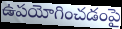
ఉపయోగించడంపై